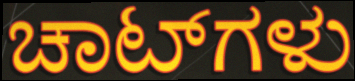
ಚಾಟ್‌ಗಳು